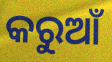
କରୁଆଁ